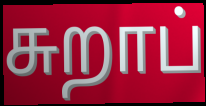
சுறாப்